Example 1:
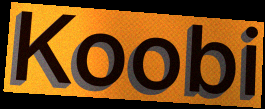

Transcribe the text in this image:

Koobi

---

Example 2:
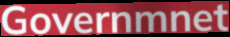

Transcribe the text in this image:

Governmnet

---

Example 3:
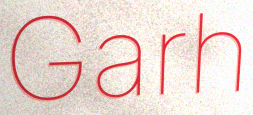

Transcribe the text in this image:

Garh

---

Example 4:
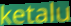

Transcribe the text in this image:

ketalu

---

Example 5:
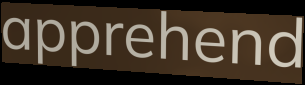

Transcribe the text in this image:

apprehend